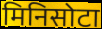
मिनिसोटा